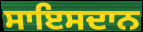
ਸਾਇਸਦਾਨ